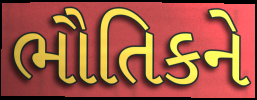
ભૌતિકને